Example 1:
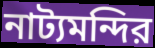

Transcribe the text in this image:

নাট্যমন্দির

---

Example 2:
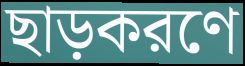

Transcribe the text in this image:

ছাড়করণে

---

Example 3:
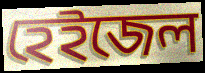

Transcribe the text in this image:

হেইজেল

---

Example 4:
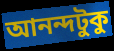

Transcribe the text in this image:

আনন্দটুকু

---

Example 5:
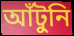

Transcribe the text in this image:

আঁটুনি